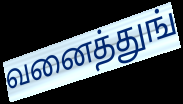
வனைத்துங்